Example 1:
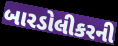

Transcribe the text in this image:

બારડોલીકરની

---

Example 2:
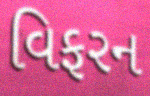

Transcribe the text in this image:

વિફરન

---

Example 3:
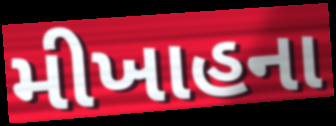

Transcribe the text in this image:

મીખાહના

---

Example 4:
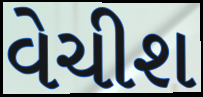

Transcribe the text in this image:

વેચીશ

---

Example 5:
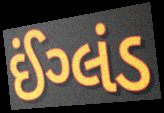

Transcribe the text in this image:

ઈંગ્લંડ